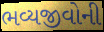
ભવ્યજીવોની